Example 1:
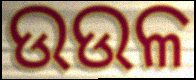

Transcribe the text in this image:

ଉଉଳ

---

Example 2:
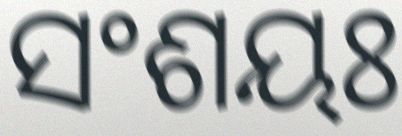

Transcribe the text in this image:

ସଂଶୟଃ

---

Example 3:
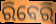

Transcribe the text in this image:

ରିବେରି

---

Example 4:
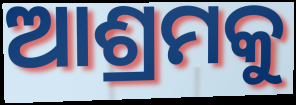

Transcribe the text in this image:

ଆଶ୍ରମକୁ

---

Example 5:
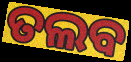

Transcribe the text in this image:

ତଲବ